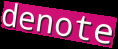
denote